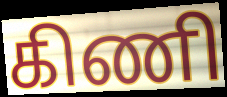
கிணி